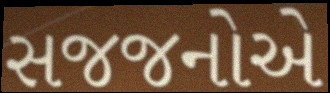
સજજનોએ